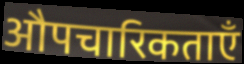
औपचारिकताएँ